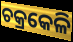
ଚକ୍ରକେଳି